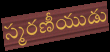
స్మరణీయుడు